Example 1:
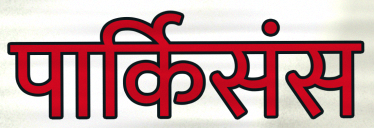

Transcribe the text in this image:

पार्किसंस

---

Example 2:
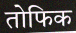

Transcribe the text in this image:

तोफिक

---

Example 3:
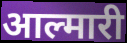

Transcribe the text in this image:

आल्मारी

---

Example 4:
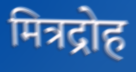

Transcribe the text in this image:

मित्रद्रोह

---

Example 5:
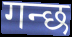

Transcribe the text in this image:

गन्छ